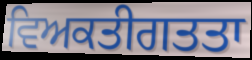
ਵਿਅਕਤੀਗਤਤਾ